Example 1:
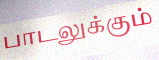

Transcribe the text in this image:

பாடலுக்கும்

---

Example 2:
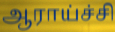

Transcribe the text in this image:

ஆராய்ச்சி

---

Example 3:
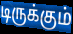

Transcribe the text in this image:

டிருக்கும்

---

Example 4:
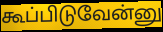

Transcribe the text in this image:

கூப்பிடுவேன்னு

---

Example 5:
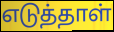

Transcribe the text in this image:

எடுத்தாள்